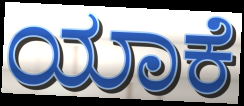
ಯಾಕೆ